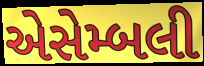
એસેમ્બલી